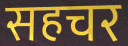
सहचर